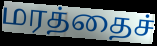
மரத்தைச்